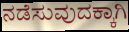
ನಡೆಸುವುದಕ್ಕಾಗಿ